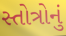
સ્તોત્રોનું